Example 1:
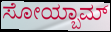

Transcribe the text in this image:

ಸೋಯ್ಬಾಮ್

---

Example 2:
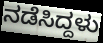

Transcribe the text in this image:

ನಡೆಸಿದ್ದಳು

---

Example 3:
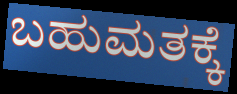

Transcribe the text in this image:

ಬಹುಮತಕ್ಕೆ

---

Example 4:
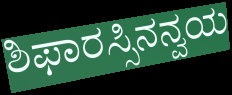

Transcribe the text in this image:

ಶಿಫಾರಸ್ಸಿನನ್ವಯ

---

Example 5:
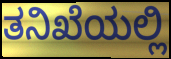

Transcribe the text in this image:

ತನಿಖೆಯಲ್ಲಿ